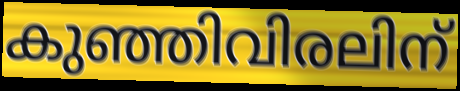
കുഞ്ഞിവിരലിന്